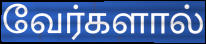
வேர்களால்